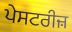
ਪੇਸਟਰੀਜ਼